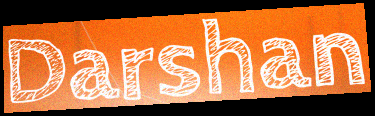
Darshan